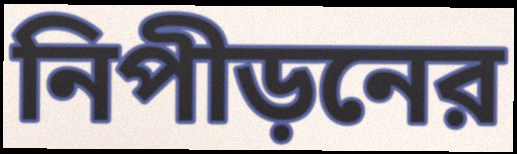
নিপীড়নের